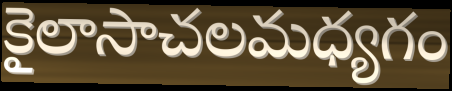
కైలాసాచలమధ్యగం